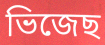
ভিজেছ